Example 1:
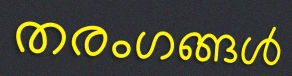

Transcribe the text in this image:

തരംഗങ്ങൾ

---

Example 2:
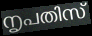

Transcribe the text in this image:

നൃപതിസ്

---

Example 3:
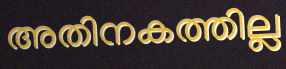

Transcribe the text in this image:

അതിനകത്തില്ല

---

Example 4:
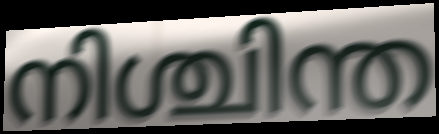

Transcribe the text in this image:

നിശ്ചിന്ത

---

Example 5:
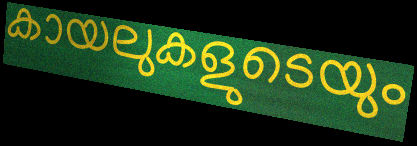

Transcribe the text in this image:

കായലുകളുടെയും